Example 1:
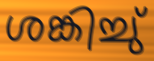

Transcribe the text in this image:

ശങ്കിച്ചു്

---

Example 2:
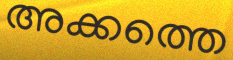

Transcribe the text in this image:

അക്കത്തെ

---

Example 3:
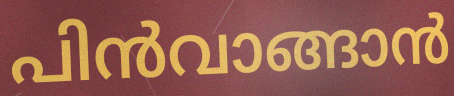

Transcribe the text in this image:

പിൻവാങ്ങാൻ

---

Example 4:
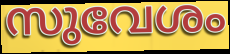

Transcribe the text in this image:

സുവേശം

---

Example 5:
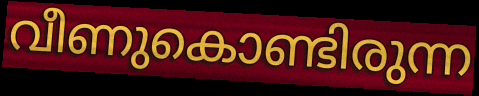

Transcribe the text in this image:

വീണുകൊണ്ടിരുന്ന